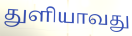
துளியாவது